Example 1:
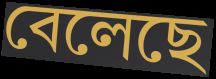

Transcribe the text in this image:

বেলেছে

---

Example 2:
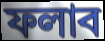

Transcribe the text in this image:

ফলাব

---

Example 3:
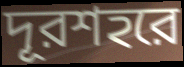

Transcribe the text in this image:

দূরশহরে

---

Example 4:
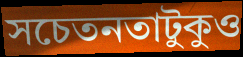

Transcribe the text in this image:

সচেতনতাটুকুও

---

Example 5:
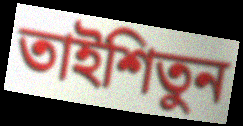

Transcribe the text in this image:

তাইশিতুন